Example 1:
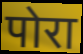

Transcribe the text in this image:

पोरा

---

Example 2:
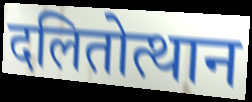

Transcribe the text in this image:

दलितोत्थान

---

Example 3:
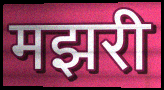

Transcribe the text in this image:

मझरी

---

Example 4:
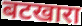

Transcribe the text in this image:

बटखारा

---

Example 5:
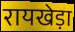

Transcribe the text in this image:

रायखेड़ा